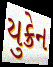
યુક્રેન